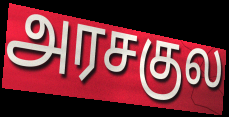
அரசகுல